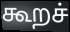
கூறச்